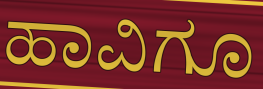
ಹಾವಿಗೂ